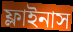
ফ্লাইনাস